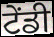
ਟੇਂਡੀ